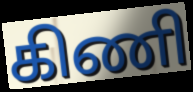
கிணி